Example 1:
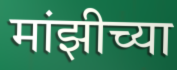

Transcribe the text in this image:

मांझीच्या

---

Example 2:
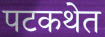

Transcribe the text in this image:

पटकथेत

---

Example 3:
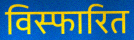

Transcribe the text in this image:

विस्फारित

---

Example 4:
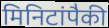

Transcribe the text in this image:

मिनिटांपैकी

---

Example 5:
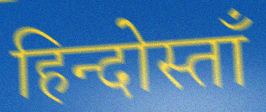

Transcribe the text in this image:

हिन्दोस्ताँ